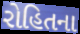
રોહિતના